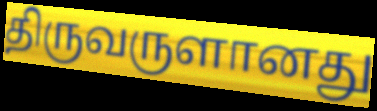
திருவருளானது